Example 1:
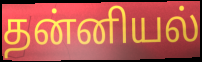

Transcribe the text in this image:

தன்னியல்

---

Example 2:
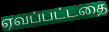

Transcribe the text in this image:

ஏவப்பட்டதை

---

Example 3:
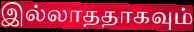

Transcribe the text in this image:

இல்லாததாகவும்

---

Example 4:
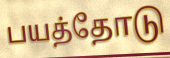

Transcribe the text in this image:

பயத்தோடு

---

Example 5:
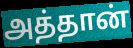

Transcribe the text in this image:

அத்தான்